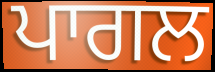
ਪਾਗਲ